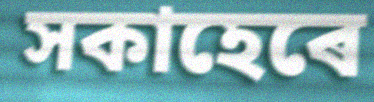
সকাহেৰে